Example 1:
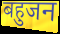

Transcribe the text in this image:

बहुजन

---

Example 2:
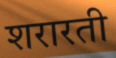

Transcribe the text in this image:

शरारती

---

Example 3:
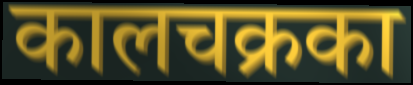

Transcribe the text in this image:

कालचक्रका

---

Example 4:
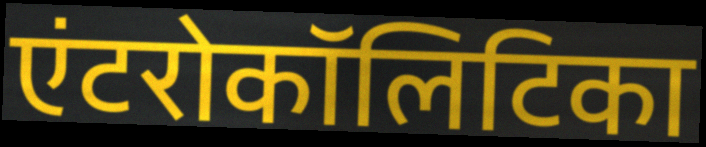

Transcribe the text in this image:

एंटरोकॉलिटिका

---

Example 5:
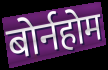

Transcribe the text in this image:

बोर्नहोम